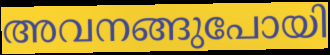
അവനങ്ങുപോയി